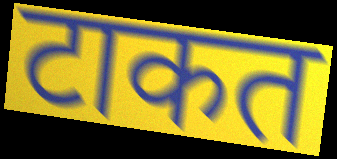
टाकत